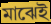
মাঝেই